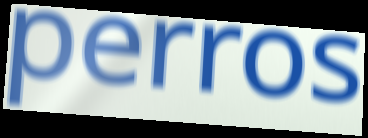
perros